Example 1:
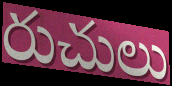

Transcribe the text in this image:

రుచులు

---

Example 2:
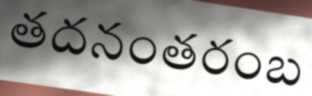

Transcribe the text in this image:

తదనంతరంబ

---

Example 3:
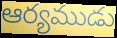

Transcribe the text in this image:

ఆర్యముడు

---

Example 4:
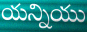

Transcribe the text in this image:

యన్నియు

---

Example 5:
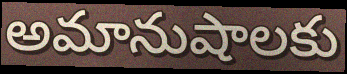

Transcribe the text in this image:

అమానుషాలకు